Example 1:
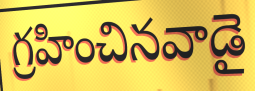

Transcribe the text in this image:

గ్రహించినవాడై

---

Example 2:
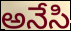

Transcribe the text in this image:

అనేసి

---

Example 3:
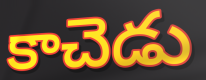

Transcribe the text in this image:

కాచెడు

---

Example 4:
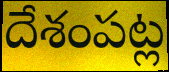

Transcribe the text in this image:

దేశంపట్ల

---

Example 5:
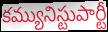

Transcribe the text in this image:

కమ్యునిస్టుపార్టీ